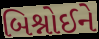
બિશ્નોઈને